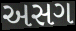
અસગ